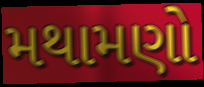
મથામણો